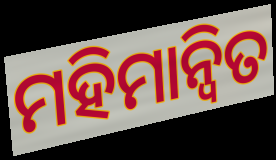
ମହିମାନ୍ୱିତ